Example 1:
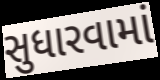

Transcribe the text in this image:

સુધારવામાં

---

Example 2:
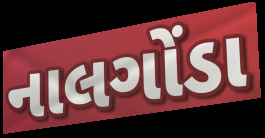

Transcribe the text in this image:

નાલગોંડા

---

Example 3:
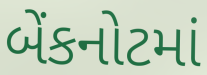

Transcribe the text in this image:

બેંકનોટમાં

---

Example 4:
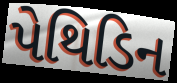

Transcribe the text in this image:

પેથિડિન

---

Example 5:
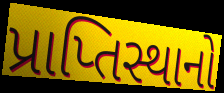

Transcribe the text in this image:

પ્રાપ્તિસ્થાનો